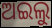
ଅଇଲୁ